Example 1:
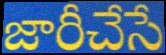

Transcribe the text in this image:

జారీచేసే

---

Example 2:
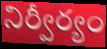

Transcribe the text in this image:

నిర్వీర్యం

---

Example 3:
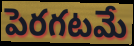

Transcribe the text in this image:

పెరగటమే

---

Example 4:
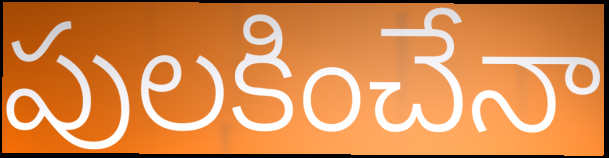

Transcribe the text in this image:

పులకించేనా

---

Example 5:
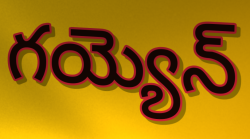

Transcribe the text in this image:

గయ్యెన్